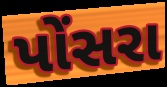
પોંસરા